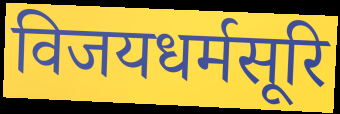
विजयधर्मसूरि